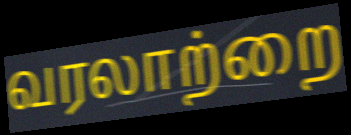
வரலாற்றை